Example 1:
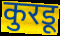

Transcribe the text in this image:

कुरडू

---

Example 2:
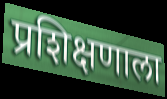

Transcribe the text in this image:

प्रशिक्षणाला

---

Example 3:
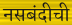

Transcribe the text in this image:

नसबंदीची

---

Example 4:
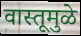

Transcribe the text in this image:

वास्तूमुळे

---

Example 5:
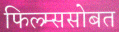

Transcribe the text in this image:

फिल्म्ससोबत